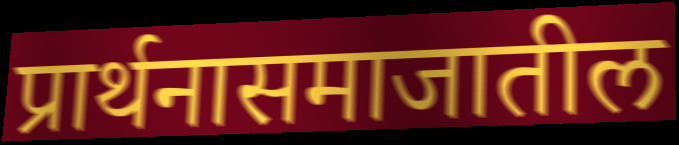
प्रार्थनासमाजातील